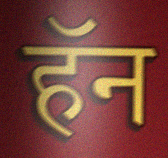
हॅन